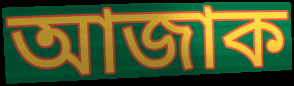
আজাক